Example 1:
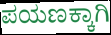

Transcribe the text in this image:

ಪಯಣಕ್ಕಾಗಿ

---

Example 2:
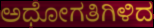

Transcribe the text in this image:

ಅಧೋಗತಿಗಿಳಿದ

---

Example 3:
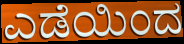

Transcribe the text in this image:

ಎಡೆಯಿಂದ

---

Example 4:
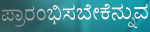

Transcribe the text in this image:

ಪ್ರಾರಂಭಿಸಬೇಕೆನ್ನುವ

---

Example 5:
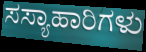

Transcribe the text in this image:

ಸಸ್ಯಾಹಾರಿಗಳು